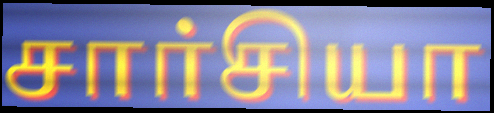
சார்சியா